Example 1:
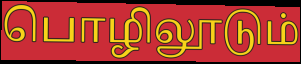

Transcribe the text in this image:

பொழிலூடும்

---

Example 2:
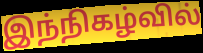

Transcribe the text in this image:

இந்நிகழ்வில்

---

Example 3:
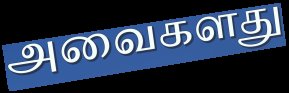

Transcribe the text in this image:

அவைகளது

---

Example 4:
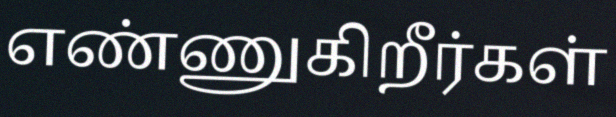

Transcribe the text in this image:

எண்ணுகிறீர்கள்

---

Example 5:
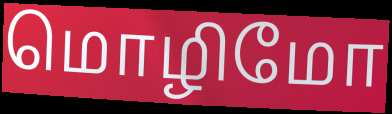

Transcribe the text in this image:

மொழிமோ